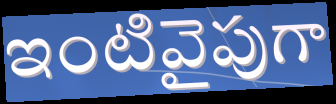
ఇంటివైపుగా